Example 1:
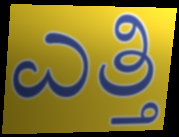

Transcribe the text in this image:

ಎತ್ತಿ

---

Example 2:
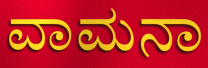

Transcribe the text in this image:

ವಾಮನಾ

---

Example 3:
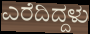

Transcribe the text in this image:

ಎರೆದಿದ್ದಳು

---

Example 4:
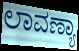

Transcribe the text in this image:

ಲಾವಣ್ಯಾ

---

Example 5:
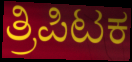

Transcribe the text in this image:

ತ್ರಿಪಿಟಕ